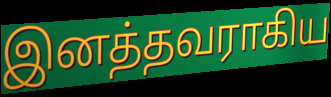
இனத்தவராகிய